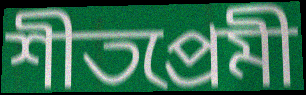
শীতপ্রেমী